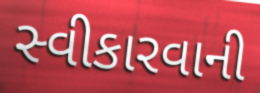
સ્વીકારવાની